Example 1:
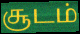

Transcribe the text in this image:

சூடம்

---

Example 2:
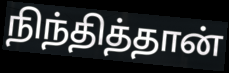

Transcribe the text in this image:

நிந்தித்தான்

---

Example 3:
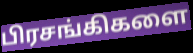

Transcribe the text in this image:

பிரசங்கிகளை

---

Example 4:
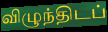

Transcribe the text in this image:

விழுந்திடப்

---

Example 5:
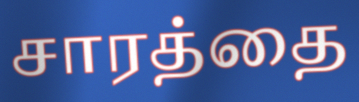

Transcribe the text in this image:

சாரத்தை